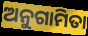
ଅନୁଗାମିତା